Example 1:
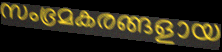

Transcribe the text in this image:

സംഭ്രമകരങ്ങളായ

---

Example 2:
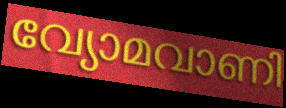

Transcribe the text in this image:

വ്യോമവാണി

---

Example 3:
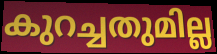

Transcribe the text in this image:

കുറച്ചതുമില്ല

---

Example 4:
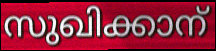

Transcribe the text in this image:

സുഖിക്കാന്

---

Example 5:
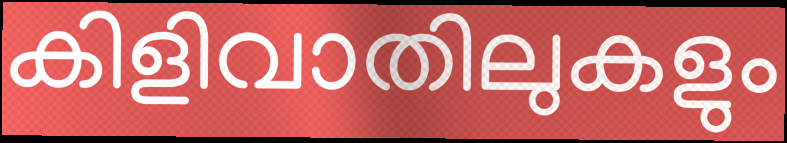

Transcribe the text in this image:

കിളിവാതിലുകളും